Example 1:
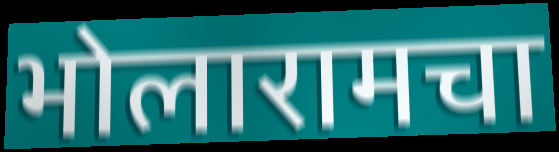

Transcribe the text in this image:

भोलारामचा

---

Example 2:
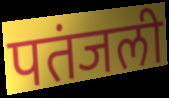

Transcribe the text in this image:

पतंजली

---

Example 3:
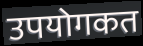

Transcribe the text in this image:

उपयोगकत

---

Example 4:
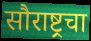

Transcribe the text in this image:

सौराष्ट्रचा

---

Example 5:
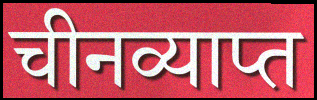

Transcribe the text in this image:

चीनव्याप्त